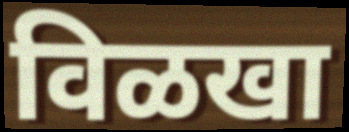
विळखा